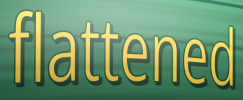
flattened